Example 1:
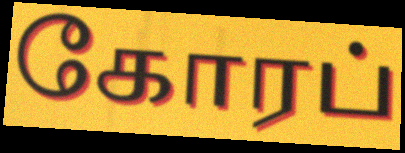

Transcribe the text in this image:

கோரப்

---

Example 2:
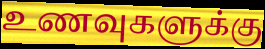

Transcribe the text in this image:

உணவுகளுக்கு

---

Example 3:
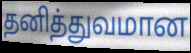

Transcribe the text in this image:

தனித்துவமான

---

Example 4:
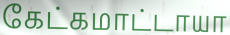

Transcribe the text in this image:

கேட்கமாட்டாயா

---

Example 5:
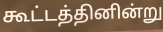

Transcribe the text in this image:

கூட்டத்தினின்று